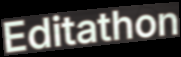
Editathon